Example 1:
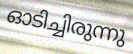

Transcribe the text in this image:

ഓടിച്ചിരുന്നു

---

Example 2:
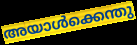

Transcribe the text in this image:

അയാൾക്കെന്തു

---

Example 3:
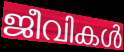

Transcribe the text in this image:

ജീവികൾ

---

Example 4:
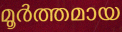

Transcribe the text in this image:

മൂർത്തമായ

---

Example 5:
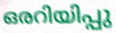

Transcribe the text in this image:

ഒരറിയിപ്പു